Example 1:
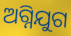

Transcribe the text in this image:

ଅଗ୍ନିଯୁଗ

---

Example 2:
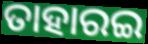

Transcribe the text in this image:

ତାହାରଇ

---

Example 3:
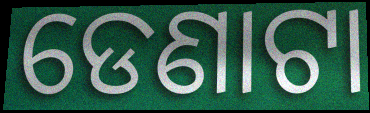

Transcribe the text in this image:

ଡେଣାଟା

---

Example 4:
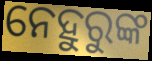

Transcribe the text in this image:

ନେହୁରୁଙ୍କ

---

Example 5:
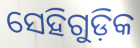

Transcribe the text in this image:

ସେହିଗୁଡ଼ିକ